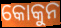
କୋକୁନ